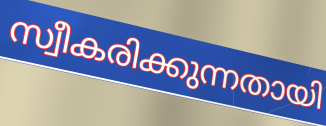
സ്വീകരിക്കുന്നതായി